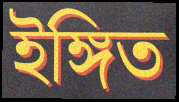
ইঙ্গিত